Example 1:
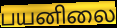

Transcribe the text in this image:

பயனிலை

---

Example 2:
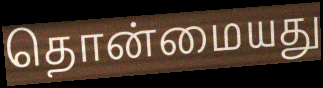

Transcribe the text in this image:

தொன்மையது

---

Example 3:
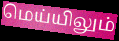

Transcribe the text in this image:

மெய்யிலும்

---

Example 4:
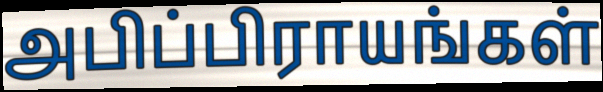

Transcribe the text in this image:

அபிப்பிராயங்கள்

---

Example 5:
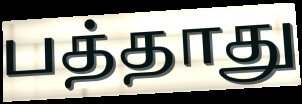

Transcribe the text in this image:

பத்தாது